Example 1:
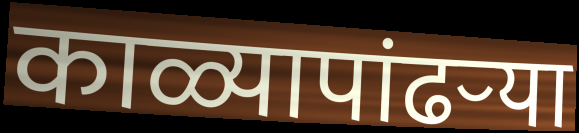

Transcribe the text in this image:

काळ्यापांढऱ्या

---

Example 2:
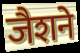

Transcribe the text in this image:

जैशने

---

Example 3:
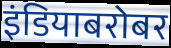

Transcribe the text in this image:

इंडियाबरोबर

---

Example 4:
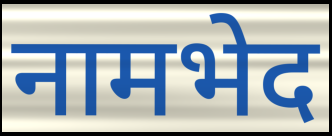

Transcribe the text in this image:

नामभेद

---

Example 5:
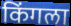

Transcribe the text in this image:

किंगला